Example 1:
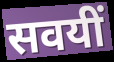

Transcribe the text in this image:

सवयीं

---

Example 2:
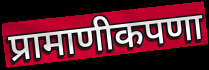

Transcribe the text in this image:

प्रामाणीकपणा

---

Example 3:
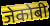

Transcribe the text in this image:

जेकोबी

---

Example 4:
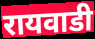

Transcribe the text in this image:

रायवाडी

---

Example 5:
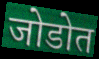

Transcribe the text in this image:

जोडोत